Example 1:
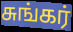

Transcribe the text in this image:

சுங்கர்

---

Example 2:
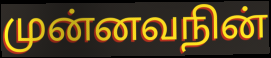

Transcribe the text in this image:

முன்னவநின்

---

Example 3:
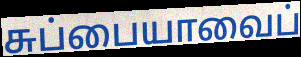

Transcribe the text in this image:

சுப்பையாவைப்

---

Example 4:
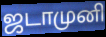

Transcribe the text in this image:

ஜடாமுனி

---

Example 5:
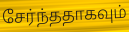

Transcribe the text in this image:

சேர்ந்ததாகவும்